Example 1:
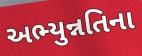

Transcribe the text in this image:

અભ્યુન્નતિના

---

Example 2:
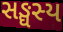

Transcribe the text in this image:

સઙ્ઘસ્ય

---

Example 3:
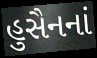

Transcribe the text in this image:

હુસૈનનાં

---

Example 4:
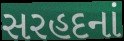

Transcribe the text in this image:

સરહદનાં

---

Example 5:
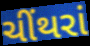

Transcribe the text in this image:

ચીંથરાં